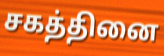
சகத்தினை